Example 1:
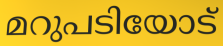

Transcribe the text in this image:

മറുപടിയോട്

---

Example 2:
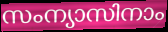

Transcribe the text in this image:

സംന്യാസിനാം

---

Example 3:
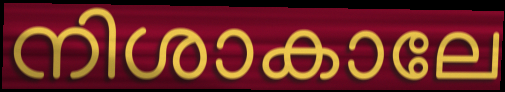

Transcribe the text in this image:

നിശാകാലേ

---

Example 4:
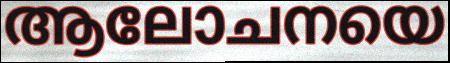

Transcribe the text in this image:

ആലോചനയെ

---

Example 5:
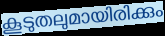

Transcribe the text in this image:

കൂടുതലുമായിരിക്കും